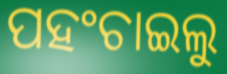
ପହଂଚାଇଲୁ